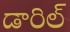
డారిల్